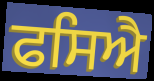
ਫਸਿਐ